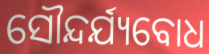
ସୌନ୍ଦର୍ଯ୍ୟବୋଧ